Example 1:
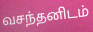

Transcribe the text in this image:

வசந்தனிடம்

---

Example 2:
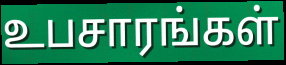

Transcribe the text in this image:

உபசாரங்கள்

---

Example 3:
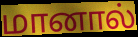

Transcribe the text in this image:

மானால்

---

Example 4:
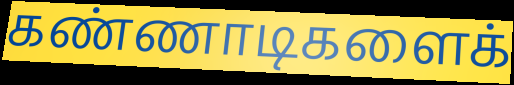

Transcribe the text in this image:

கண்ணாடிகளைக்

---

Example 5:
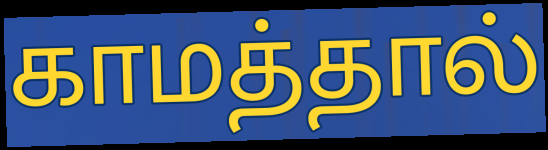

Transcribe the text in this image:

காமத்தால்